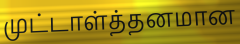
முட்டாள்த்தனமான